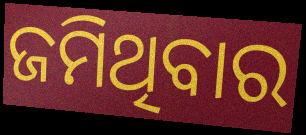
ଜମିଥିବାର